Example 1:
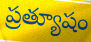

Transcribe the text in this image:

ప్రత్యూషం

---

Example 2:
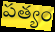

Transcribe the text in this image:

పత్యం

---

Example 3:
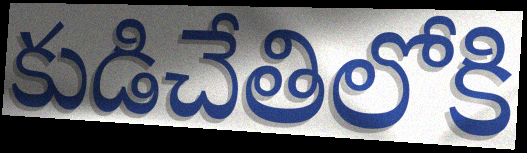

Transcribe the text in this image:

కుడిచేతిలోకి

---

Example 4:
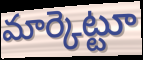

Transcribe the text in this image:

మార్కెట్టూ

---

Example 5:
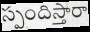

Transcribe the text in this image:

స్పందిస్తారా